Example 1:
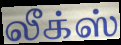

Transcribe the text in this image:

லீக்ஸ்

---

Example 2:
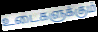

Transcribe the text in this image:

உடைகளுக்கும்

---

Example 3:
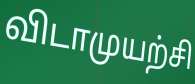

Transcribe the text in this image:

விடாமுயற்சி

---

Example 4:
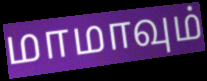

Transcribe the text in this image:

மாமாவும்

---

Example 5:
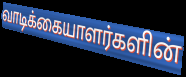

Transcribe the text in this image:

வாடிக்கையாளர்களின்